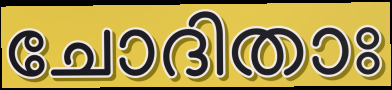
ചോദിതാഃ